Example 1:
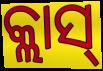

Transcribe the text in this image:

କ୍ଲାସ୍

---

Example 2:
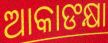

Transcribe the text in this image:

ଆକାଙକ୍ଷା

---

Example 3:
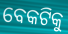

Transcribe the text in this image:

ବେକଟିକୁ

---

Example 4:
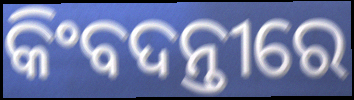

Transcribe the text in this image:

କିଂବଦନ୍ତୀରେ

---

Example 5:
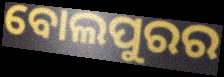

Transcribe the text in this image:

ବୋଲପୁରର